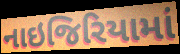
નાઇજિરિયામાં